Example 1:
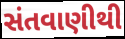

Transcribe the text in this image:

સંતવાણીથી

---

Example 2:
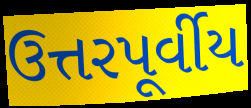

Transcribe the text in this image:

ઉત્તરપૂર્વીય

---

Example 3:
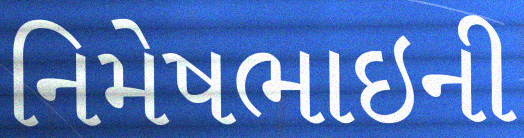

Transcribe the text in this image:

નિમેષભાઇની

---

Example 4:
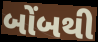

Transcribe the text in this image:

બોંબથી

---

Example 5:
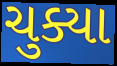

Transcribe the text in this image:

ચુક્યા